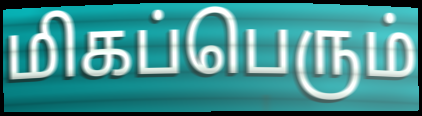
மிகப்பெரும்